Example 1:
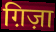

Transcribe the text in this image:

ग़िज़ा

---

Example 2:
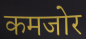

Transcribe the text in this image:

कमजोर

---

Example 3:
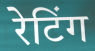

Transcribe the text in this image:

रेटिंग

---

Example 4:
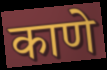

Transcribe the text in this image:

काणे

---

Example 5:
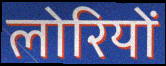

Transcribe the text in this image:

लोरियों